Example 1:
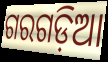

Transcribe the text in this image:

ଗରଗଡ଼ିଆ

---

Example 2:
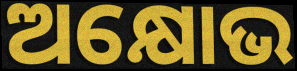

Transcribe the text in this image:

ଅକ୍ଷୋଭ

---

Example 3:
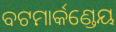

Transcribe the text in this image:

ବଟମାର୍କଣ୍ଡେୟ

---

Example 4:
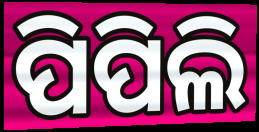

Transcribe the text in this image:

ପିପିଲି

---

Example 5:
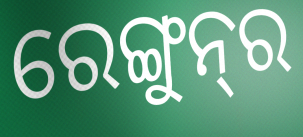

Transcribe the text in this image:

ରେଙ୍ଗୁନ୍‌ର